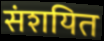
संशयित